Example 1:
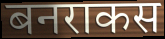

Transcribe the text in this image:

बनराकस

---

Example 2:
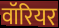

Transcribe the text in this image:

वॉरियर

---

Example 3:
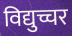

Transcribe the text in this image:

विद्युच्चर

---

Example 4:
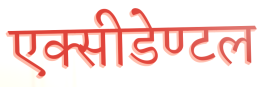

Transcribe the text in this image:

एक्सीडेण्टल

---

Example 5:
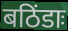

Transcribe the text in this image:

बठिंडाः